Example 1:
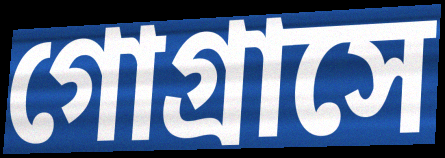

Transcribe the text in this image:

গোগ্রাসে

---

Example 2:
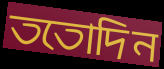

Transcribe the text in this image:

ততোদিন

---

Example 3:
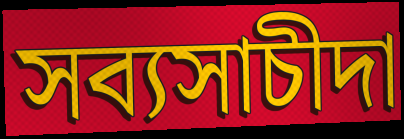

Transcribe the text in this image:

সব্যসাচীদা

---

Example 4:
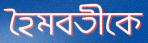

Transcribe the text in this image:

হৈমবতীকে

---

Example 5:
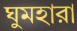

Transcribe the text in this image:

ঘুমহারা